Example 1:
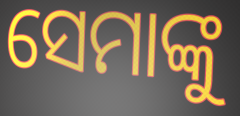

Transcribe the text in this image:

ସେମାଙ୍କୁ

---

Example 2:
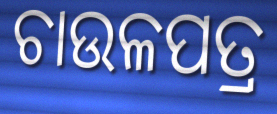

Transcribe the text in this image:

ଚାଉଳପତ୍ର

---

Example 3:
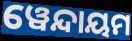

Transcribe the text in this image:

ୱେନ୍ଦାୟମ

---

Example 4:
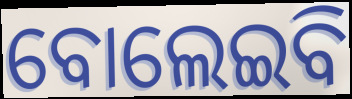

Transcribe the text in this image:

ବୋଲେଇବି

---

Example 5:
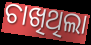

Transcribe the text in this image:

ଚାଖିଥିଲା